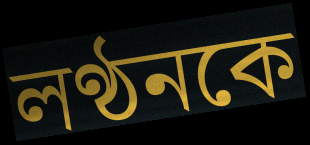
লণ্ঠনকে